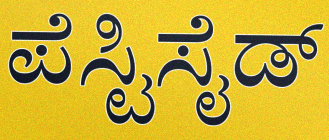
ಪೆಸ್ಟಿಸೈಡ್